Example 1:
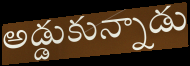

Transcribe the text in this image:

అడ్డుకున్నాడు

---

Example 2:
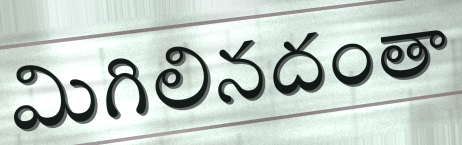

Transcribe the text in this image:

మిగిలినదంతా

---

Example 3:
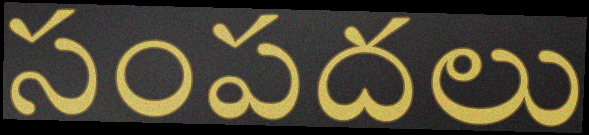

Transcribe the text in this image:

సంపదలు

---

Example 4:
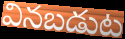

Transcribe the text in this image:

వినబడుట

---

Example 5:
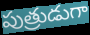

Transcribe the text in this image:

పుత్రుడుగా